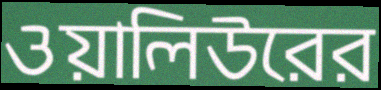
ওয়ালিউরের